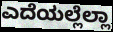
ಎದೆಯಲ್ಲೆಲ್ಲಾ